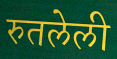
रुतलेली